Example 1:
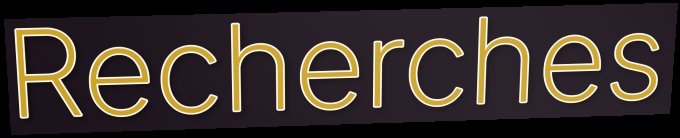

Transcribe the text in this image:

Recherches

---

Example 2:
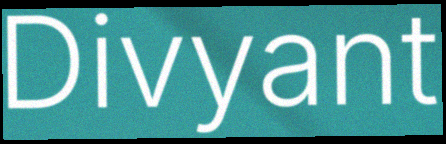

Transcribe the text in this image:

Divyant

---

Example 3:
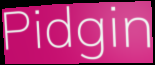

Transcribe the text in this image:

Pidgin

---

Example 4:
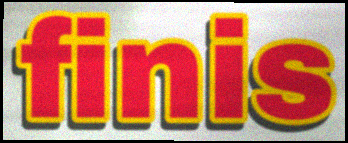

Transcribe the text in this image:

finis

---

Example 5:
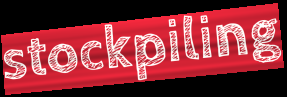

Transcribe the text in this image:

stockpiling